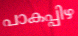
പാകപ്പിഴ